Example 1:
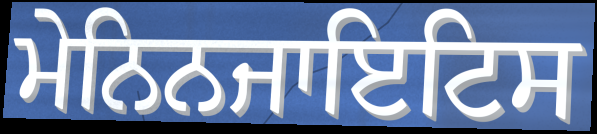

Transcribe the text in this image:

ਮੇਨਿਨਜਾਇਟਿਸ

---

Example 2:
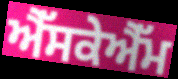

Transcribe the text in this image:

ਐੱਸਕੇਐੱਮ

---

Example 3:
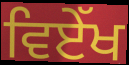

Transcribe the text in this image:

ਵਿਏੱਖ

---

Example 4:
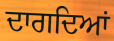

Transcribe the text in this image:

ਦਾਗਦਿਆਂ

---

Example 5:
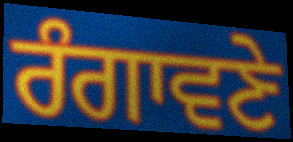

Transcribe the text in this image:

ਰੰਗਾਵਣੇ